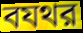
বযথর